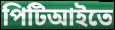
পিটিআইতে